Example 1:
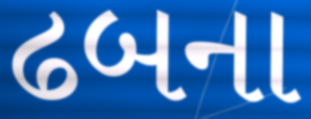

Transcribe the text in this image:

ઢબના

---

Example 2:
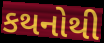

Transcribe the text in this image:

કથનોથી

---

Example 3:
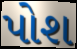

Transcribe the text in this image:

પોશ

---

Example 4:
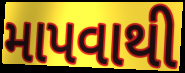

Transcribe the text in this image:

માપવાથી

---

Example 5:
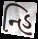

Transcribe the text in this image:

ન્હિ